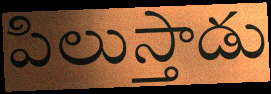
పిలుస్తాడు